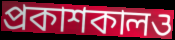
প্রকাশকালও